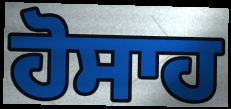
ਹੋਸਾਹ